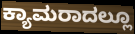
ಕ್ಯಾಮರಾದಲ್ಲೂ